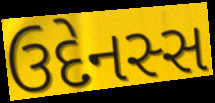
ઉદેનસ્સ